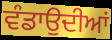
ਵੰਡਾਉਦੀਆਂ